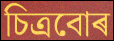
চিত্ৰবোৰ